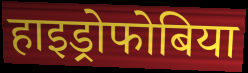
हाइड्रोफोबिया